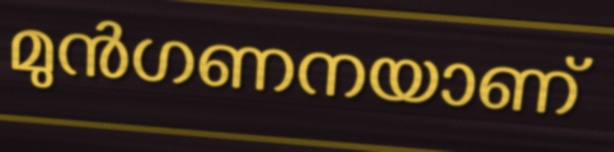
മുൻഗണനയാണ്